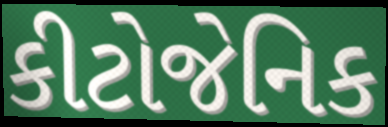
કીટોજેનિક